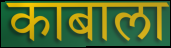
काबाला